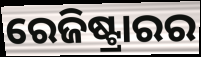
ରେଜିଷ୍ଟ୍ରାରର